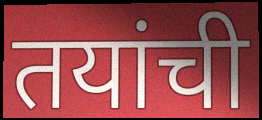
तयांची